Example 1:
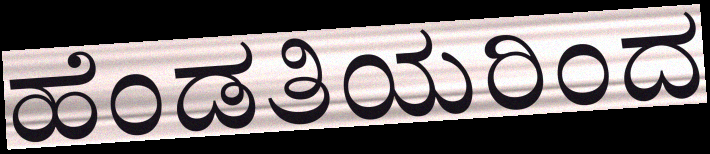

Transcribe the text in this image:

ಹೆಂಡತಿಯರಿಂದ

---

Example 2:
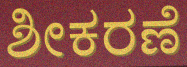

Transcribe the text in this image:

ಶೀಕರಣೆ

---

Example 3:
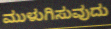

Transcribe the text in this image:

ಮುಳುಗಿಸುವುದು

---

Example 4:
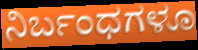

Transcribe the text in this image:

ನಿರ್ಬಂಧಗಳೂ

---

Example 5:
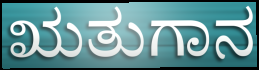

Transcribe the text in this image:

ಋತುಗಾನ